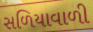
સળિયાવાળી